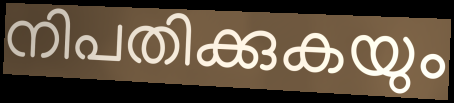
നിപതിക്കുകയും